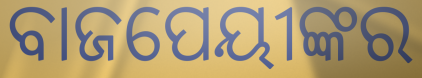
ବାଜପେୟୀଙ୍କର